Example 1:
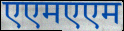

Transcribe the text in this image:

एएमएएम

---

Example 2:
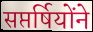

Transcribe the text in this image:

सप्तर्षियोंने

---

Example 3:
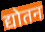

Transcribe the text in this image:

द्योतन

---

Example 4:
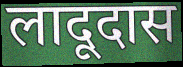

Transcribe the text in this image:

लादूदास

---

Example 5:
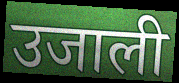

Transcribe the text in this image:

उजाली